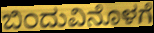
ಬಿಂದುವಿನೊಳಗೆ